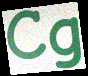
Cg